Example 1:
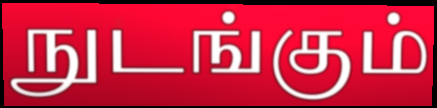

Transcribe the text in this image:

நுடங்கும்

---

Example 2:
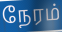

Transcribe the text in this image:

நேரம்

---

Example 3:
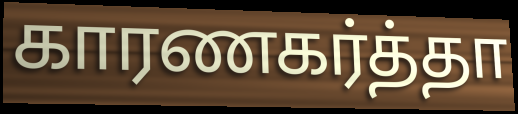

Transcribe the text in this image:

காரணகர்த்தா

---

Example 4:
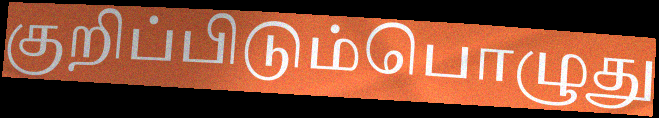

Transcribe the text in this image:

குறிப்பிடும்பொழுது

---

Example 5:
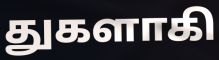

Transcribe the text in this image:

துகளாகி